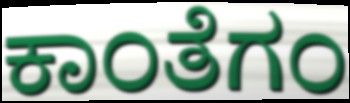
ಕಾಂತೆಗಂ